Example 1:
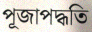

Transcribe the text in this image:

পূজাপদ্ধতি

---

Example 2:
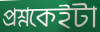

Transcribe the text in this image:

প্ৰশ্নকেইটা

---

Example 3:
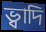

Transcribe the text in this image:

ভ্বাদি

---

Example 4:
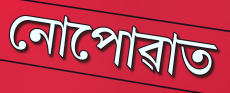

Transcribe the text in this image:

নোপোৱাত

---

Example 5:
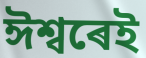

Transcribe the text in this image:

ঈশ্বৰেই